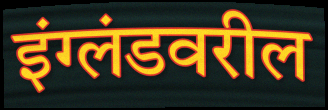
इंग्लंडवरील